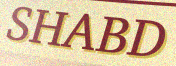
SHABD